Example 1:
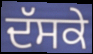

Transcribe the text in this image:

ਦੱਸਕੇ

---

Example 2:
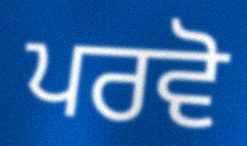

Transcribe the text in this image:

ਪਰਵੋ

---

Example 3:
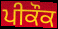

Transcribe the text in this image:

ਪੀਕੌਕ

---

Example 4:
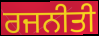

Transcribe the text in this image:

ਰਜਨੀਤੀ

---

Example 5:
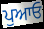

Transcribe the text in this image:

ਪੁਆਓ